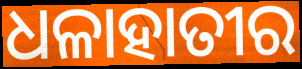
ଧଳାହାତୀର